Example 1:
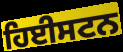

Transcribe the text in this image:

ਹਿਈਸਟਨ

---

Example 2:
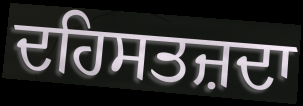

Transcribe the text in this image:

ਦਹਿਸਤਜ਼ਦਾ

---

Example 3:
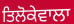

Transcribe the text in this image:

ਤਿਲੋਕੇਵਾਲਾ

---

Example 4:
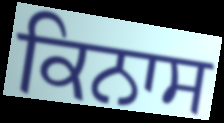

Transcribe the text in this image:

ਕਿਨਾਸ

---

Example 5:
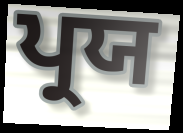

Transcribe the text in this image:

ਪ੍ਰਯ